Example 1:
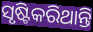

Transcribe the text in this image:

ସୃଷ୍ଟିକରିଥାନ୍ତି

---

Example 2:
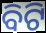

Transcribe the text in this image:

ବିଟି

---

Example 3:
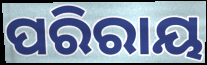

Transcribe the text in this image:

ପରିରାୟ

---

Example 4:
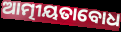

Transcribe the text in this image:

ଆତ୍ମୀୟତାବୋଧ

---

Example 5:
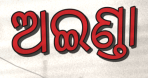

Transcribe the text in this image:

ଅଇଣ୍ଡା